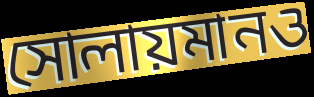
সোলায়মানও